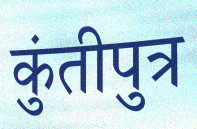
कुंतीपुत्र